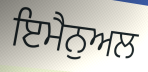
ਇਮੈਨੁਅਲ